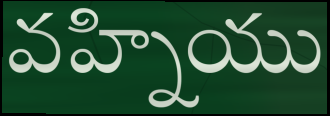
వహ్నియు